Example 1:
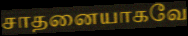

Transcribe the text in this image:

சாதனையாகவே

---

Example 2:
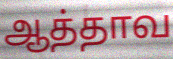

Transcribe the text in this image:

ஆத்தாவ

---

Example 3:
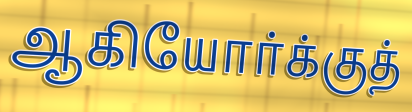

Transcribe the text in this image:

ஆகியோர்க்குத்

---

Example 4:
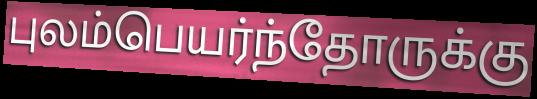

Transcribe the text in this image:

புலம்பெயர்ந்தோருக்கு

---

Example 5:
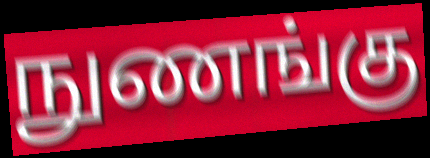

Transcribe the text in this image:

நுணங்கு